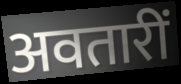
अवतारीं